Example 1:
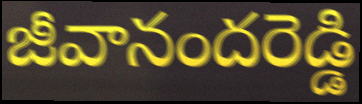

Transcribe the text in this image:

జీవానందరెడ్డి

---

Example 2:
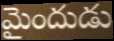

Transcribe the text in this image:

మైందుడు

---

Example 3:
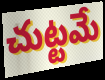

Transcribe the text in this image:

చుట్టమే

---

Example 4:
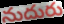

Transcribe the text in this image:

నుదురు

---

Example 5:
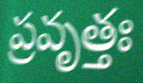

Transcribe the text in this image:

ప్రవృత్తః